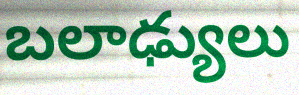
బలాఢ్యులు